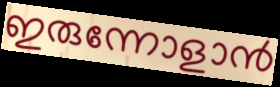
ഇരുന്നോളാൻ